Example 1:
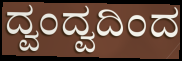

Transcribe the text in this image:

ದ್ವಂದ್ವದಿಂದ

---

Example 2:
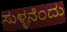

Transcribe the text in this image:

ಸುಳ್ಳನೆಂದು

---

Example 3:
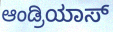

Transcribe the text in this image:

ಆಂಡ್ರಿಯಾಸ್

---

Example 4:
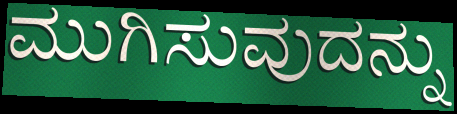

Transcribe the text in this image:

ಮುಗಿಸುವುದನ್ನು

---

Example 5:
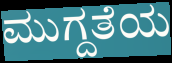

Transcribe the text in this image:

ಮುಗ್ದತೆಯ